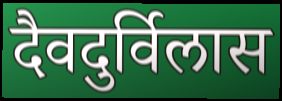
दैवदुर्विलास